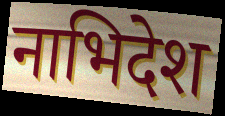
नाभिदेश